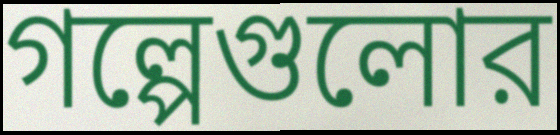
গল্পেগুলোর